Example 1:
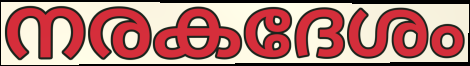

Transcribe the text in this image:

നരകദേശം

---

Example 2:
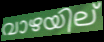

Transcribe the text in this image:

വാഴയില്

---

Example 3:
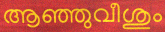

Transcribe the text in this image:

ആഞ്ഞുവീശും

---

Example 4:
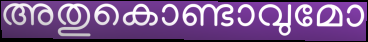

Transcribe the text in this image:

അതുകൊണ്ടാവുമോ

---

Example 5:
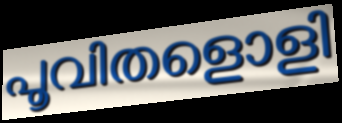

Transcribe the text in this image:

പൂവിതളൊളി